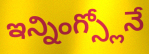
ఇన్నింగ్స్లోనే